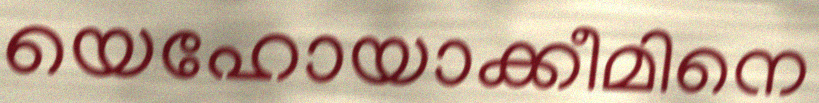
യെഹോയാക്കീമിനെ